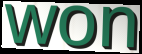
won